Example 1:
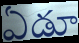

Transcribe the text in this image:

ఏడూ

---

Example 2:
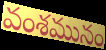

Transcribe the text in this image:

వంశమునం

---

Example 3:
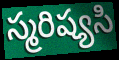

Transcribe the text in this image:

స్మరిష్యసి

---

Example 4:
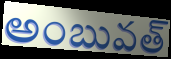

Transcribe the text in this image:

అంబువత్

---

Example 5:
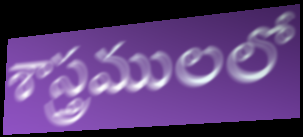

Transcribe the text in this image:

శాస్త్రములలో